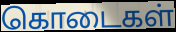
கொடைகள்